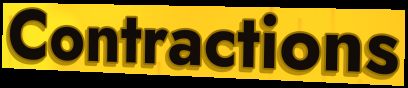
Contractions